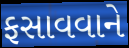
ફસાવવાને